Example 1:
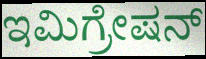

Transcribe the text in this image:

ಇಮಿಗ್ರೇಷನ್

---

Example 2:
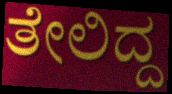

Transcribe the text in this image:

ತೇಲಿದ್ದ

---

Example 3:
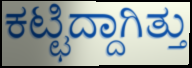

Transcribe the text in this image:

ಕಟ್ಟಿದ್ದಾಗಿತ್ತು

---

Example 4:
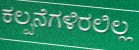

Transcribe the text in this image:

ಕಲ್ಪನೆಗಳಿರಲಿಲ್ಲ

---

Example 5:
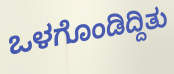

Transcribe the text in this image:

ಒಳಗೊಂಡಿದ್ದಿತು